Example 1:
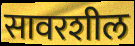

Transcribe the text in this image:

सावरशील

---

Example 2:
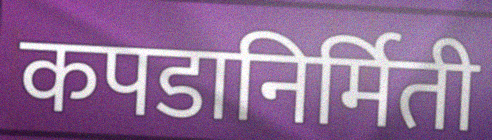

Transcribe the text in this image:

कपडानिर्मिती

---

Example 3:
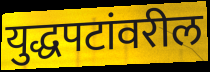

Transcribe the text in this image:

युद्धपटांवरील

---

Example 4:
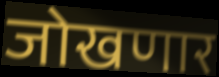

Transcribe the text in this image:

जोखणार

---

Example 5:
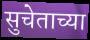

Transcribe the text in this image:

सुचेताच्या